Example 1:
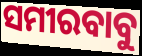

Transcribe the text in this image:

ସମୀରବାବୁ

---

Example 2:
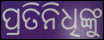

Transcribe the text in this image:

ପ୍ରତିନିଧିଙ୍କୁ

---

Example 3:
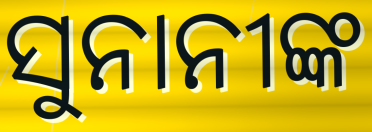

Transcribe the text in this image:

ସୁନାନୀଙ୍କ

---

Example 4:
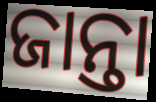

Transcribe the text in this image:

ଜାନ୍ତା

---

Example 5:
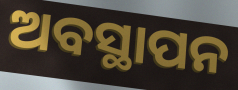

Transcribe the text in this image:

ଅବସ୍ଥାପନ